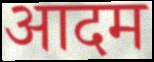
आदम